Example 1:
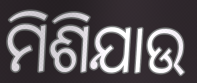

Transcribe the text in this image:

ମିଶିଯାଉ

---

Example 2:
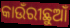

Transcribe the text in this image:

କାଉଁରୀଛୁଆଁ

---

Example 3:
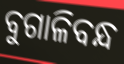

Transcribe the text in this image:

ବୁଗାଳିବନ୍ଧ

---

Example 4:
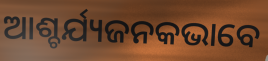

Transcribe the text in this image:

ଆଶ୍ଚର୍ଯ୍ୟଜନକଭାବେ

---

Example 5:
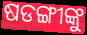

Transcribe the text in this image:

ଷଡଙ୍ଗୀଙ୍କୁ